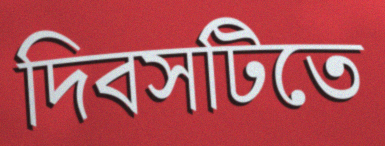
দিবসটিতে